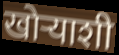
खोऱ्याशी